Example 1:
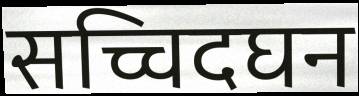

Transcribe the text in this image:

सच्चिदघन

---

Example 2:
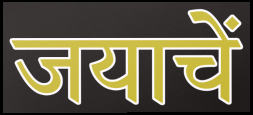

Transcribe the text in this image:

जयाचें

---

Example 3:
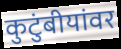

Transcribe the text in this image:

कुटुंबीयांवर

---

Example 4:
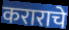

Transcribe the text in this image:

कराराचे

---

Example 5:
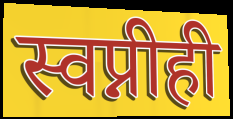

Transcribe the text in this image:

स्वप्नीही